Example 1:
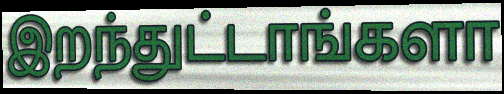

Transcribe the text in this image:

இறந்துட்டாங்களா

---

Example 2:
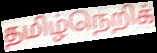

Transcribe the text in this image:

தமிழ்நெறிக்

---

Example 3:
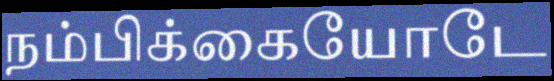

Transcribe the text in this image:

நம்பிக்கையோடே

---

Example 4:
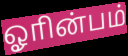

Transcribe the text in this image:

ஓரின்பம்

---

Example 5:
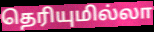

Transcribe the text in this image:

தெரியுமில்லா